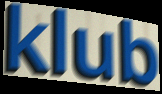
klub